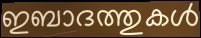
ഇബാദത്തുകൾ